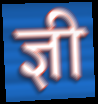
ज्ञी